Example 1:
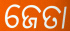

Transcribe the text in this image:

ଜେତା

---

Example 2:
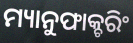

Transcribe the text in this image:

ମ୍ୟାନୁଫାକ୍ଚରିଂ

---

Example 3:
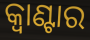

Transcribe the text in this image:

କ୍ୱାଣ୍ଟାର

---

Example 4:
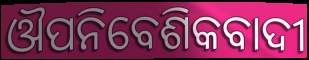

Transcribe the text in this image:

ଔପନିବେଶିକବାଦୀ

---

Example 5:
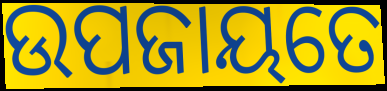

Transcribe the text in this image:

ଉପଜାୟତେ